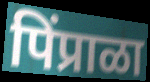
पिंप्राळा